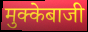
मुक्केबाजी